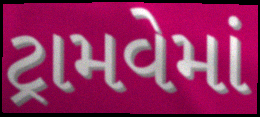
ટ્રામવેમાં